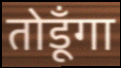
तोडूँगा